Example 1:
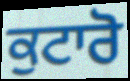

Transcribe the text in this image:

ਕੁਟਾਰੋ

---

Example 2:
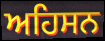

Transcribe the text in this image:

ਅਹਿਸਨ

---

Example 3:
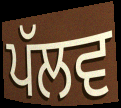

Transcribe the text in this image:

ਪੱਲਵ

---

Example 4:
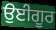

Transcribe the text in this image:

ਉਈਗੂਰ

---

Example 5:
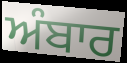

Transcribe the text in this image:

ਅੰਬਾਰ